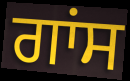
ਗਾਂਸ